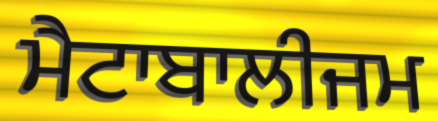
ਮੈਟਾਬਾਲੀਜਮ